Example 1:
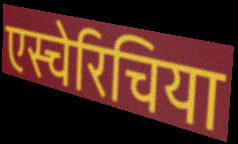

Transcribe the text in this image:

एस्चेरिचिया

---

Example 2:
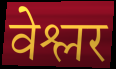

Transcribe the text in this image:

वेश्लर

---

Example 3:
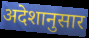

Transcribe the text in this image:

अदेशानुसार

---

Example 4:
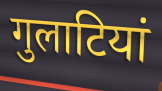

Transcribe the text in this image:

गुलाटियां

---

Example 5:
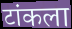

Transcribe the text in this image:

टांकला